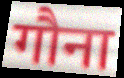
गौना